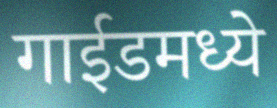
गाईडमध्ये